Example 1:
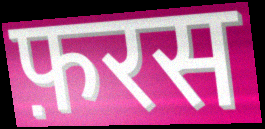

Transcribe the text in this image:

फ़रस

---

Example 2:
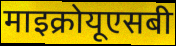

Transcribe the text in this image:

माइक्रोयूएसबी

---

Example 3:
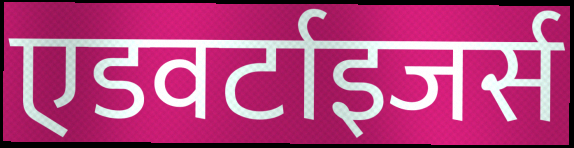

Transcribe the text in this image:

एडवर्टाइजर्स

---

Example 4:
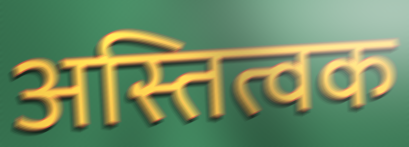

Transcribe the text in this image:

अस्तित्वक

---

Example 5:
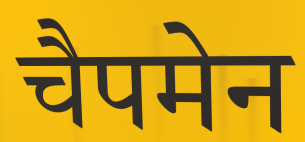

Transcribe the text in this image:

चैपमेन